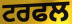
ਟਰਫਲ